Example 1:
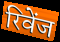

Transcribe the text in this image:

रिवेंज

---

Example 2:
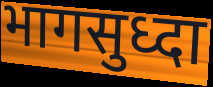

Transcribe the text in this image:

भागसुध्दा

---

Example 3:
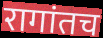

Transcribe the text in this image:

रागांतच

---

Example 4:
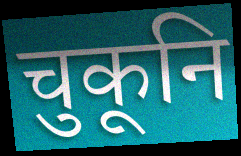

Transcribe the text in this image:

चुकूनि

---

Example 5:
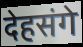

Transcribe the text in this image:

देहसंगे